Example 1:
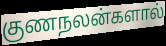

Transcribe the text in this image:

குணநலன்களால்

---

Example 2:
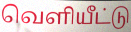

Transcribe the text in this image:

வெளியீட்டு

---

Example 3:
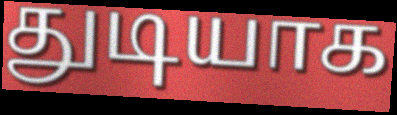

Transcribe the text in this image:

துடியாக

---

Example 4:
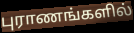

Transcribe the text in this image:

புராணங்களில்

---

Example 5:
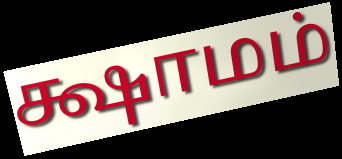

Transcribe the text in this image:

க்ஷாமம்